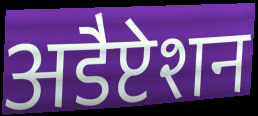
अडैप्टेशन